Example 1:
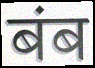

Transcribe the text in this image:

बंब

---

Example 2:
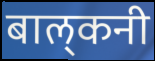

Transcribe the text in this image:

बाल्कनी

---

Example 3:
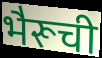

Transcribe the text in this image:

भैरूची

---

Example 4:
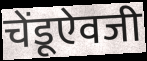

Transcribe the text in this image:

चेंडूऐवजी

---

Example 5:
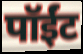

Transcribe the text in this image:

पॉईंट